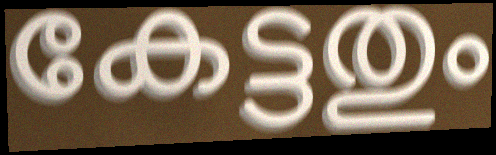
കേട്ടതും